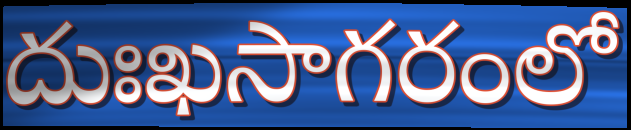
దుఃఖసాగరంలో